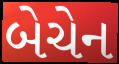
બેચેન